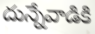
దున్నేవాడికి